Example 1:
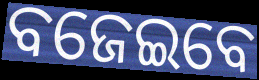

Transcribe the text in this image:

ବଜେଇବେ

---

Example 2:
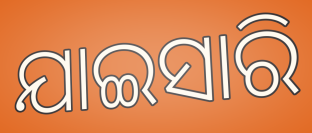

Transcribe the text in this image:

ଯାଇସାରି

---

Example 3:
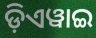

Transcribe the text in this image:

ଡ଼ିଏୱାଇ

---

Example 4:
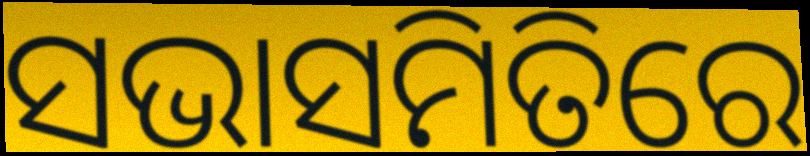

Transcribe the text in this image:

ସଭାସମିତିରେ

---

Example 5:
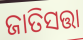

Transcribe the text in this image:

ଜାତିସତ୍ତା